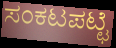
ಸಂಕಟಪಟ್ಟೆ